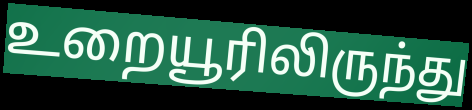
உறையூரிலிருந்து